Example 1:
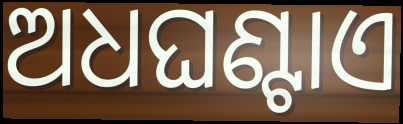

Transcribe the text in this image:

ଅଧଘଣ୍ଟାଏ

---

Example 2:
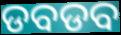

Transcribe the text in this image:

ଡବଡବ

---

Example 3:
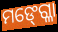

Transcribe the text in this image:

ମଙ୍ଗ୍ଳୋ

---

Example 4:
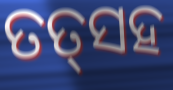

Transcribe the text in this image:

ତତ୍‌ସହ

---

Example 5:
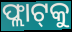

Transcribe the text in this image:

ଫ୍ଲାଟ୍‌କୁ